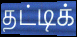
தட்டிக்